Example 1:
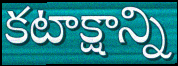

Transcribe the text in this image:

కటాక్షాన్ని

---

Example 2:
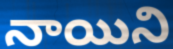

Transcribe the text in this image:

నాయిని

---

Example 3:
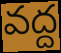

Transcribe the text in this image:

వద్ద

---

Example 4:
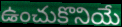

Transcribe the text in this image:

ఉంచుకొనియే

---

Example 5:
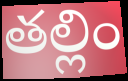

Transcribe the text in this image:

తల్లిం